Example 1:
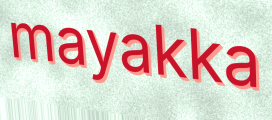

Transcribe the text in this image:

mayakka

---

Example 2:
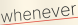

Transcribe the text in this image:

whenever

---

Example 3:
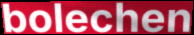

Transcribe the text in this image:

bolechen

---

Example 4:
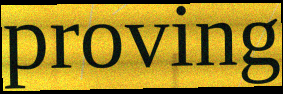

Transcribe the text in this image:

proving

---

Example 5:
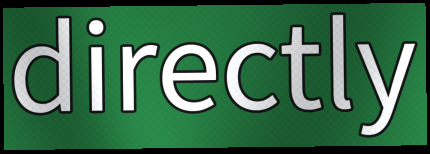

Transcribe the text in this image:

directly